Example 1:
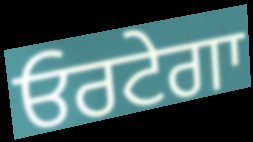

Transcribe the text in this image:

ਓਰਟੇਗਾ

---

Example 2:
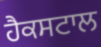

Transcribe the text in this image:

ਹੈਕਸਟਾਲ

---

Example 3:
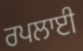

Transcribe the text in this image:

ਰਪਲਾਈ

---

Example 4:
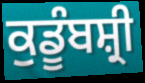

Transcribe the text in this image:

ਕੁਡੂੰਬਸ਼੍ਰੀ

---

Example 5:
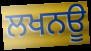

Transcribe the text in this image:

ਲਖਨਊ